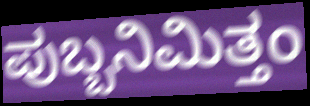
ಪುಬ್ಬನಿಮಿತ್ತಂ